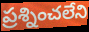
ప్రశ్నించలేని